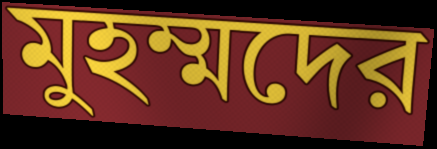
মুহম্মদের